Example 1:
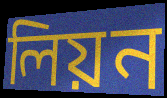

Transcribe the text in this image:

লিয়ন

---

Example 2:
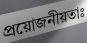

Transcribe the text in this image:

প্ৰয়োজনীয়তাঃ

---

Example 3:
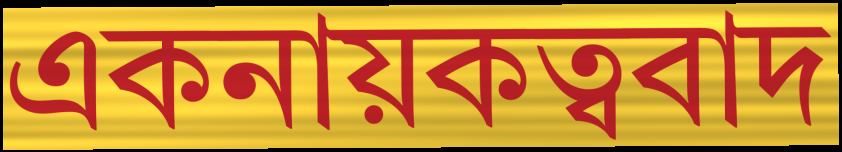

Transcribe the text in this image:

একনায়কত্ববাদ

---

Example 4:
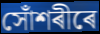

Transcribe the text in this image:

সোঁশৰীৰে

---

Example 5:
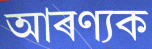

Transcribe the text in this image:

আৰণ্যক